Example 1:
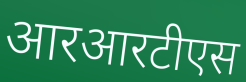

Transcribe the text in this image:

आरआरटीएस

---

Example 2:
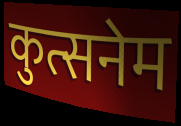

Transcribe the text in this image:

कुत्सनेम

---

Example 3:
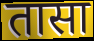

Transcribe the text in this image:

तासा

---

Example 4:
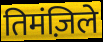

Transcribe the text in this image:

तिमंज़िले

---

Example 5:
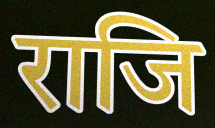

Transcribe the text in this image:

राजि